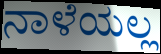
ನಾಳೆಯಲ್ಲ